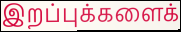
இறப்புக்களைக்